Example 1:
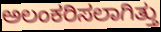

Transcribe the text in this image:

ಅಲಂಕರಿಸಲಾಗಿತ್ತು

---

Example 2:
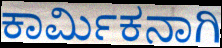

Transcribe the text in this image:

ಕಾರ್ಮಿಕನಾಗಿ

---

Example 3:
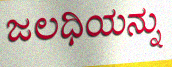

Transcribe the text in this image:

ಜಲಧಿಯನ್ನು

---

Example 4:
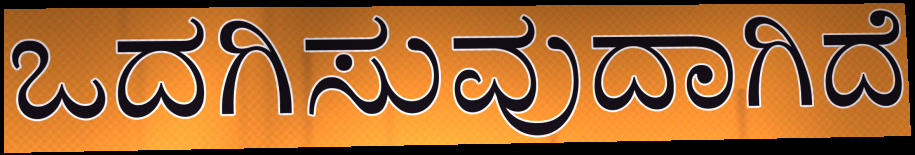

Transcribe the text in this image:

ಒದಗಿಸುವುದಾಗಿದೆ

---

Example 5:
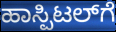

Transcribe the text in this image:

ಹಾಸ್ಪಿಟಲ್‌ಗೆ